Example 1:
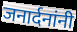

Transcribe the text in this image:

जनार्दनांनी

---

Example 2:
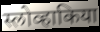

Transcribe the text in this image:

स्लोव्हाकिया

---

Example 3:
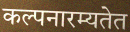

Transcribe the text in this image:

कल्पनारम्यतेत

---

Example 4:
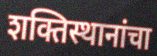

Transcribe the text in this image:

शक्तिस्थानांचा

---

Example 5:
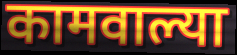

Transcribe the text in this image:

कामवाल्या